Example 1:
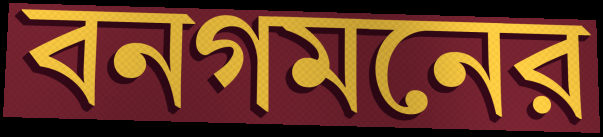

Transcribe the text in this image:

বনগমনের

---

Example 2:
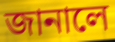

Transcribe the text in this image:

জানালে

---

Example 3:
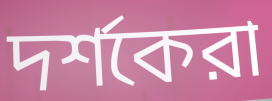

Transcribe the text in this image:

দর্শকেরা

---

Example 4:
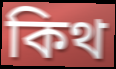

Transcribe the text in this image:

কিথ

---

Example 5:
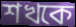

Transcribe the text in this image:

শখকে